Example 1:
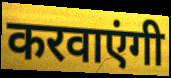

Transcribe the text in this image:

करवाएंगी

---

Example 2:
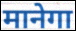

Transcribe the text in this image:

मानेगा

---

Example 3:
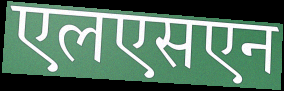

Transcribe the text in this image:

एलएसएन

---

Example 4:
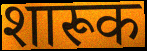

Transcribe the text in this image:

शारूक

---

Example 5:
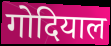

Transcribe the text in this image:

गोदियाल